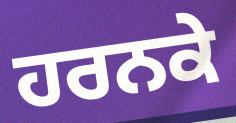
ਹਰਨਕੇ